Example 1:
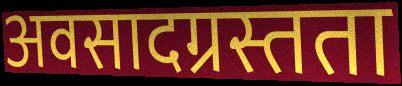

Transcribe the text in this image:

अवसादग्रस्तता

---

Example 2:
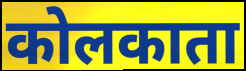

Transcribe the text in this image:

कोलकाता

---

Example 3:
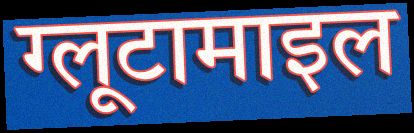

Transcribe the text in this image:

ग्लूटामाइल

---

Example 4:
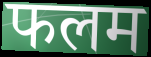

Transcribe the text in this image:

फलम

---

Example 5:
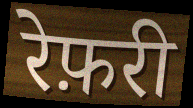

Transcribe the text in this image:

रेफ़री